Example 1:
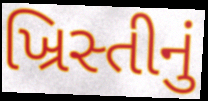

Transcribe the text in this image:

ખ્રિસ્તીનું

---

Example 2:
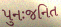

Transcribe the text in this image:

પુનઃજનિત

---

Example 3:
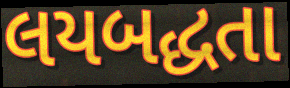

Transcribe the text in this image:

લયબદ્ધતા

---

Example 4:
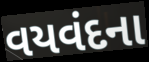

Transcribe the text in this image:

વયવંદના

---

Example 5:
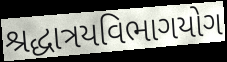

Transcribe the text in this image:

શ્રદ્ધાત્રયવિભાગયોગ